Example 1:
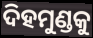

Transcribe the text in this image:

ଦିହମୁଣ୍ଡକୁ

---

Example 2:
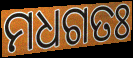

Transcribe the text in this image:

ମଧଗତଃ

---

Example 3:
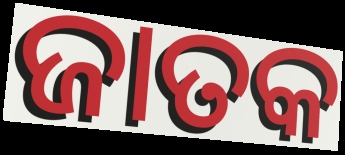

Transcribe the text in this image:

ଜାତକ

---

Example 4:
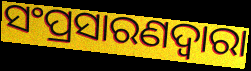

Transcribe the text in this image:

ସଂପ୍ରସାରଣଦ୍ଵାରା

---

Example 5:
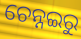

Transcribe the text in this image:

ଚେନ୍ନଇରୁ